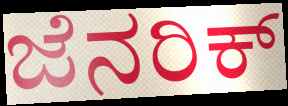
ಜೆನರಿಕ್